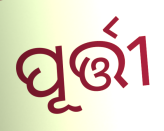
ପୂର୍ତ୍ତୀ